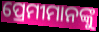
ପ୍ରେମୀମାନଙ୍କୁ